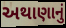
અથાણાનું